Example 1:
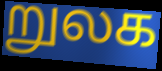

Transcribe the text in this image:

றுலக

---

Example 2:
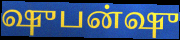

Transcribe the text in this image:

ஷுபன்ஷு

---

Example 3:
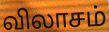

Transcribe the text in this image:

விலாசம்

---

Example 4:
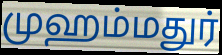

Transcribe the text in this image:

முஹம்மதுர்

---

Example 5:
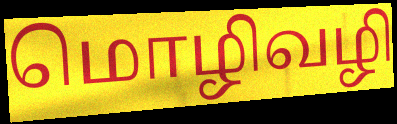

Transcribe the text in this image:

மொழிவழி